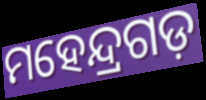
ମହେନ୍ଦ୍ରଗଡ଼